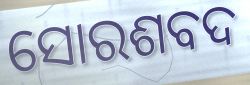
ସୋରଶବଦ